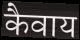
कैवाय